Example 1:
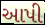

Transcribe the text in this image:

આપી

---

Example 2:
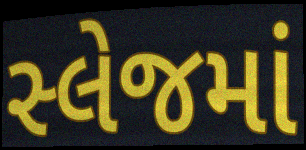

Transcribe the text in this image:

સ્લેજમાં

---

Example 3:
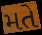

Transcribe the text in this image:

મતે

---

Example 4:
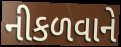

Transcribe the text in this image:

નીકળવાને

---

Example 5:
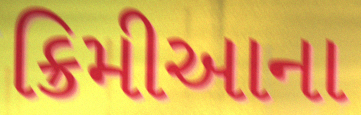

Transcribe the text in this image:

ક્રિમીઆના